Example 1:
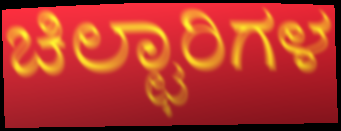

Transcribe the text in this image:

ಚಿಲ್ಟಾರಿಗಳ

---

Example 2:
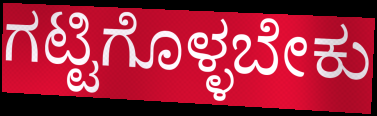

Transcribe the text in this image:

ಗಟ್ಟಿಗೊಳ್ಳಬೇಕು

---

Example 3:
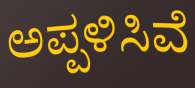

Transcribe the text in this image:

ಅಪ್ಪಳಿಸಿವೆ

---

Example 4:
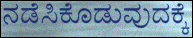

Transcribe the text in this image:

ನಡೆಸಿಕೊಡುವುದಕ್ಕೆ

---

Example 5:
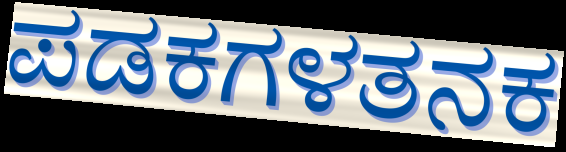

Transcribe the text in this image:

ಪಡಕಗಳತನಕ